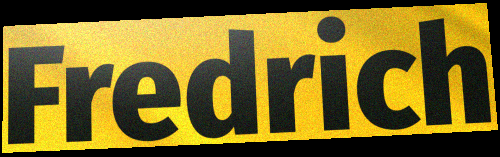
Fredrich